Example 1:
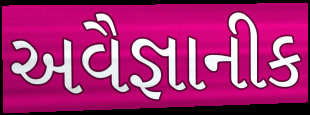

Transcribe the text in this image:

અવૈજ્ઞાનીક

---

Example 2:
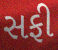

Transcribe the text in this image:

સફી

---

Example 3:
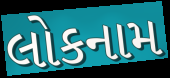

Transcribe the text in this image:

લોકનામ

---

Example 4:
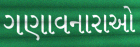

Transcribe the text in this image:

ગણાવનારાઓ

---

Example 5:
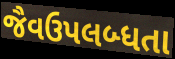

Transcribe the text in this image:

જૈવઉપલબ્ધતા